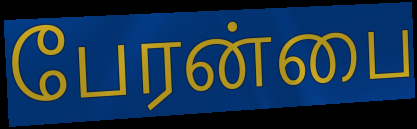
பேரன்பை